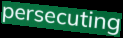
persecuting